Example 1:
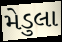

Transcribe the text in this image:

મેડુલા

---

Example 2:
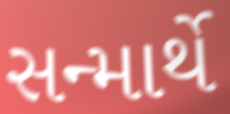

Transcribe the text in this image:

સન્માર્થે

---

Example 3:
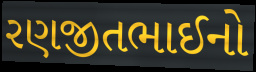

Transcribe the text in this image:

રણજીતભાઈનો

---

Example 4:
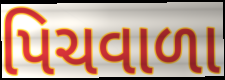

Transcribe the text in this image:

પિચવાળા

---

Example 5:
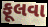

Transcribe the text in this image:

ફૂલવા